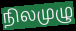
நிலமுழு